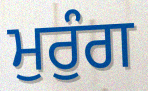
ਮੁਰੁੰਗ